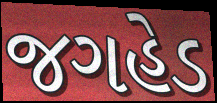
જગહેડ